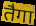
तैगा